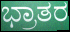
ಭ್ರಾತರ